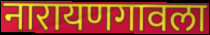
नारायणगावला